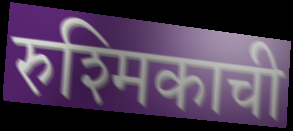
रुश्मिकाची